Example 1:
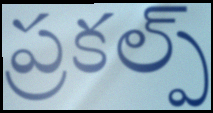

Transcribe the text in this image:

ప్రకల్ప్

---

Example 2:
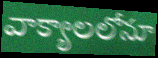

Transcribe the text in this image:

వాక్యాలలోనూ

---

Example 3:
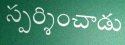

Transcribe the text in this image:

స్పర్శించాడు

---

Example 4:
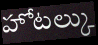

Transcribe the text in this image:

హోటల్కు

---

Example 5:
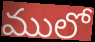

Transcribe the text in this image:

ములో